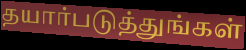
தயார்படுத்துங்கள்